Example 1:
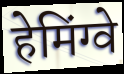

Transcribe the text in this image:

हेमिंग्वे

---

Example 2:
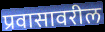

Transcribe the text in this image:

प्रवासावरील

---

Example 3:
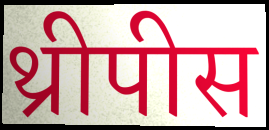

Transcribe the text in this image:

थ्रीपीस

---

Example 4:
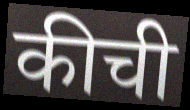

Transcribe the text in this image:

कीची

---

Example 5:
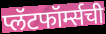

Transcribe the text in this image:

प्लॅटफॉर्म्सची